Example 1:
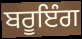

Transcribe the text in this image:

ਬਰੂਇੰਗ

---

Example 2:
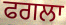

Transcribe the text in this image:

ਫਗਲਾ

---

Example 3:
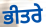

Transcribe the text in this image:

ਭੀਤਰੇ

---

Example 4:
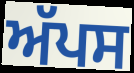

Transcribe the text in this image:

ਅੱਪਸ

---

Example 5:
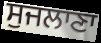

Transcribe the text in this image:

ਸੁਜਲਾਣਾ